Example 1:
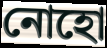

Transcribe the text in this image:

নোহো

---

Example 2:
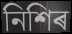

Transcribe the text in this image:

নিশিৰ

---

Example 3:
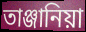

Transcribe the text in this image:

তাঞ্জানিয়া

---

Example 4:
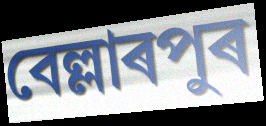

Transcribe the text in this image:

বেল্লাৰপুৰ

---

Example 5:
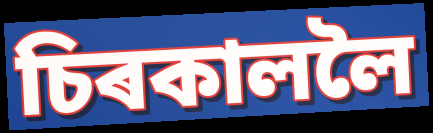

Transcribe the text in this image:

চিৰকাললৈ